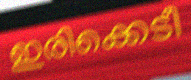
ഇരിക്കെടീ